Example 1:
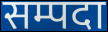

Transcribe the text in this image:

सम्पदा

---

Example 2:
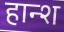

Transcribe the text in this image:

हान्श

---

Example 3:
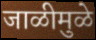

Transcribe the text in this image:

जाळीमुळे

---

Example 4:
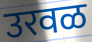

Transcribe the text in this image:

उरवळ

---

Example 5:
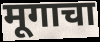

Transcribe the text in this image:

मूगाचा